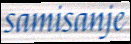
samisanje